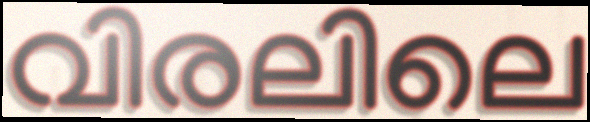
വിരലിലെ